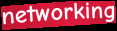
networking